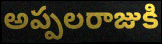
అప్పలరాజుకి